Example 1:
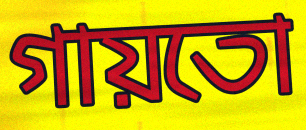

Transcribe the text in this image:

গায়তো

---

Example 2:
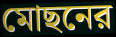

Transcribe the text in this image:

মোছনের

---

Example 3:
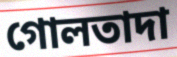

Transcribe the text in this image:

গোলতাদা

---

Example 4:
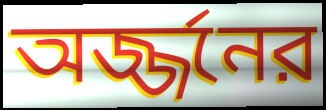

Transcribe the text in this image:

অর্জ্জনের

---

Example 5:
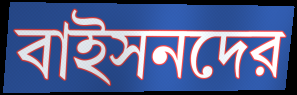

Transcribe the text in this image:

বাইসনদের